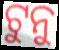
ଟୁନୁ